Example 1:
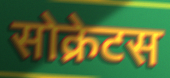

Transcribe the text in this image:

सोक्रेटस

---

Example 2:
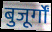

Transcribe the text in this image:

बुजूर्गों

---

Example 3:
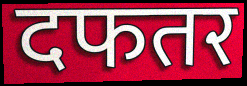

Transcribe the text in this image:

दफतर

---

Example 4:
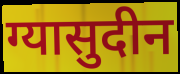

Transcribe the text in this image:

ग्यासुदीन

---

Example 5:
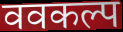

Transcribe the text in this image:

ववकल्प